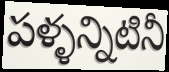
పళ్ళన్నిటినీ